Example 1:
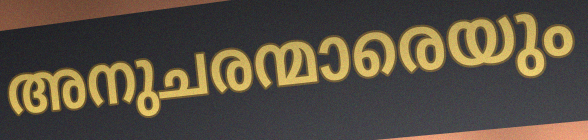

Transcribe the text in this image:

അനുചരന്മാരെയും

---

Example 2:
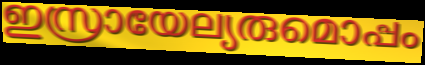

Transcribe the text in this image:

ഇസ്രായേല്യരുമൊപ്പം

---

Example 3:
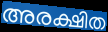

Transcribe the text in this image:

അരക്ഷിത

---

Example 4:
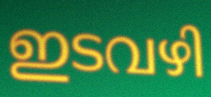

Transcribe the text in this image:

ഇടവഴി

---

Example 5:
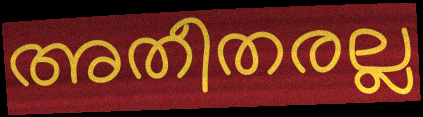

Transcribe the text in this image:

അതീതരല്ല